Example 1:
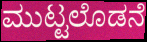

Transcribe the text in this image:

ಮುಟ್ಟಲೊಡನೆ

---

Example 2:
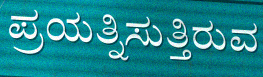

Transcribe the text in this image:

ಪ್ರಯತ್ನಿಸುತ್ತಿರುವ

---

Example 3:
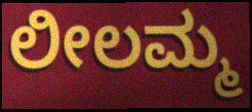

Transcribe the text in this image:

ಲೀಲಮ್ಮ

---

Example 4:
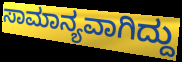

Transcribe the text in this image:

ಸಾಮಾನ್ಯವಾಗಿದ್ದು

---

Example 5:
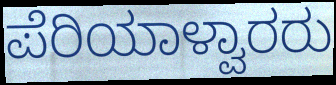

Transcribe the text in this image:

ಪೆರಿಯಾಳ್ವಾರರು